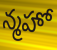
న్మహో